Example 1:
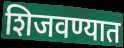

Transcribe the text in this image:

शिजवण्यात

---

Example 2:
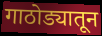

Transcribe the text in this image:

गाठोड्यातून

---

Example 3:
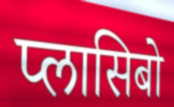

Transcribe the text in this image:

प्लासिबो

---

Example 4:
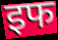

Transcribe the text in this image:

इफ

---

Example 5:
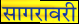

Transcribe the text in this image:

सागरावरी